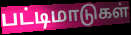
பட்டிமாடுகள்